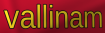
vallinam